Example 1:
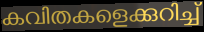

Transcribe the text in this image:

കവിതകളെക്കുറിച്ച്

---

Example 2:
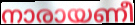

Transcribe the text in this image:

നാരായണീ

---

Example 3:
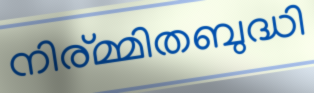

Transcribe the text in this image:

നിര്മ്മിതബുദ്ധി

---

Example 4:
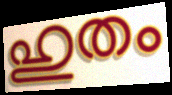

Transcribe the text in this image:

ഹുതം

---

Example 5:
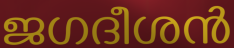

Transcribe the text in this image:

ജഗദീശൻ